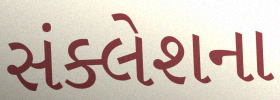
સંક્લેશના